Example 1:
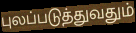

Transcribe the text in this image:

புலப்படுத்துவதும்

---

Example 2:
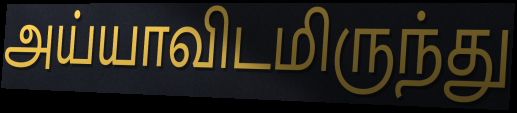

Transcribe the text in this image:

அய்யாவிடமிருந்து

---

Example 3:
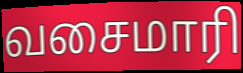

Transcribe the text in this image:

வசைமாரி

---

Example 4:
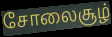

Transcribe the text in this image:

சோலைசூழ்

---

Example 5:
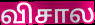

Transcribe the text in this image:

விசால